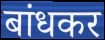
बांधकर